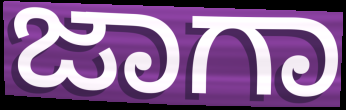
ಜಾಗಾ